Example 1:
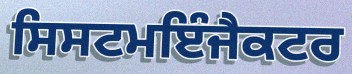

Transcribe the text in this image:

ਸਿਸਟਮਇੰਜੈਕਟਰ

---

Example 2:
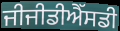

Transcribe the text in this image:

ਜੀਜੀਡੀਐੱਸਡੀ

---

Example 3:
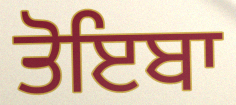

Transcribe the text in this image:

ਤੋਇਬਾ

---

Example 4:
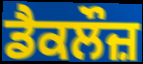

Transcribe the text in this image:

ਡੈਕਲੌਜ਼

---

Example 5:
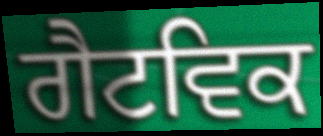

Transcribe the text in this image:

ਗੈਟਵਿਕ